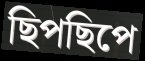
ছিপছিপে